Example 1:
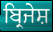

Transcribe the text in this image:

ਬ੍ਰਿਜੇਸ਼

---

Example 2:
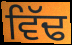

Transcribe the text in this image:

ਵਿੱਢ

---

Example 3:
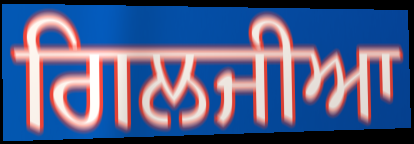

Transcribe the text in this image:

ਗਿਲਜੀਆ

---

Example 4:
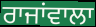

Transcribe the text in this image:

ਰਾਜਾਂਵਾਲਾ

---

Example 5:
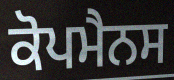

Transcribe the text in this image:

ਕੋਪਮੈਨਸ